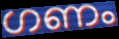
ഗണം